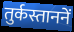
तुर्कस्ताननें